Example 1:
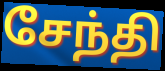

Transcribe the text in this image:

சேந்தி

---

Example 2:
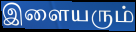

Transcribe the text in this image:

இளையரும்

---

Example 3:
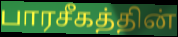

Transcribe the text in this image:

பாரசீகத்தின்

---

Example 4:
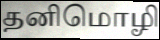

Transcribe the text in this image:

தனிமொழி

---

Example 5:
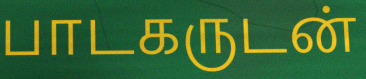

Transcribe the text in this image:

பாடகருடன்